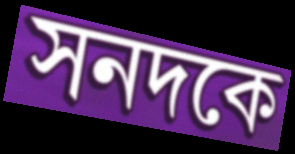
সনদকে